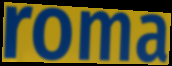
roma